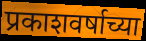
प्रकाशवर्षाच्या